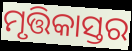
ମୃତ୍ତିକାସ୍ତର